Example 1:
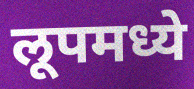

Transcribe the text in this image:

लूपमध्ये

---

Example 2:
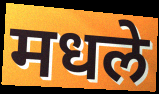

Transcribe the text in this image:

मधले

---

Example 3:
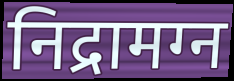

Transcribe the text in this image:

निद्रामग्न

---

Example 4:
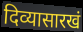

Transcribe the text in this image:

दिव्यासारखं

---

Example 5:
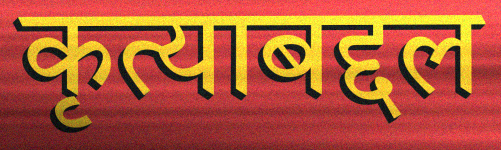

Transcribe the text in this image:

कृत्याबद्दल